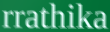
rrathika